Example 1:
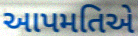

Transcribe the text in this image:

આપમતિએ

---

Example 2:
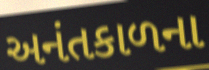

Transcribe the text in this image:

અનંતકાળના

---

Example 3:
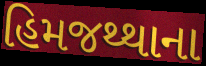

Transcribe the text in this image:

હિમજથ્થાના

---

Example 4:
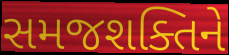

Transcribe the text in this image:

સમજશક્તિને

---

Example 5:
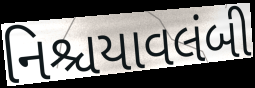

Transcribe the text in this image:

નિશ્ચયાવલંબી